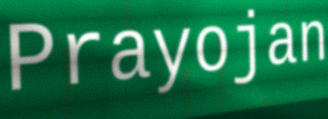
Prayojan